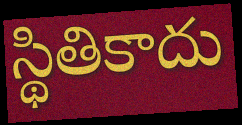
స్థితికాదు